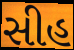
સીહ